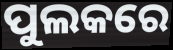
ପୁଲକରେ